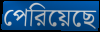
পেরিয়েছে